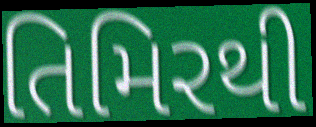
તિમિરથી